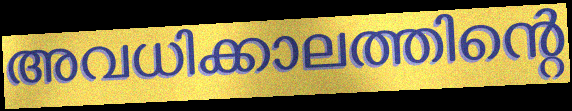
അവധിക്കാലത്തിന്റെ